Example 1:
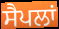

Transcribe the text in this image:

ਸੈਪਲਾਂ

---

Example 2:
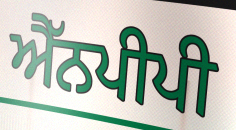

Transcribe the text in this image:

ਐੱਨਪੀਪੀ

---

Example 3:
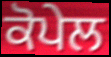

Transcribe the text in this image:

ਕੋਪੇਲ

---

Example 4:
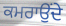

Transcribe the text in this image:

ਕਮਰਾਉਂਦੇ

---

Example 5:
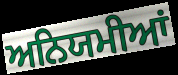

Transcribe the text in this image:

ਅਨਿਯਮੀਆਂ